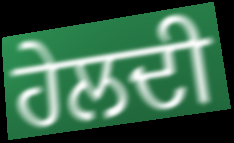
ਹੇਲਦੀ